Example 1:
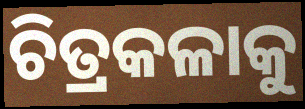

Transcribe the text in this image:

ଚିତ୍ରକଳାକୁ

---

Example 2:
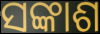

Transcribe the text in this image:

ସଙ୍କାଶ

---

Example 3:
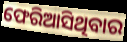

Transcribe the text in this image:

ଫେରିଆସିଥିବାର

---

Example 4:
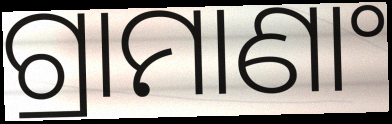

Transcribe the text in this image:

ଗ୍ରାମାଣାଂ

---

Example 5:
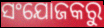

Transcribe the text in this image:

ସଂଯୋଜକରୁ